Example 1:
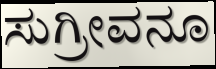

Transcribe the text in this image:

ಸುಗ್ರೀವನೂ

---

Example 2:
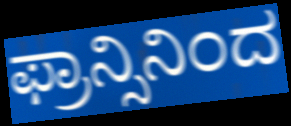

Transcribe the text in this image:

ಫ್ರಾನ್ಸಿನಿಂದ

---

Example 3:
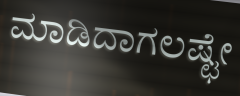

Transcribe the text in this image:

ಮಾಡಿದಾಗಲಷ್ಟೇ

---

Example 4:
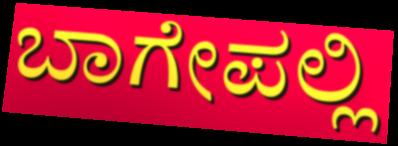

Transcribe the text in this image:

ಬಾಗೇಪಲ್ಲಿ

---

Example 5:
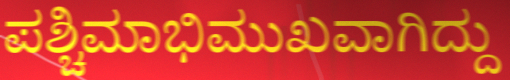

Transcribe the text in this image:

ಪಶ್ಚಿಮಾಭಿಮುಖವಾಗಿದ್ದು